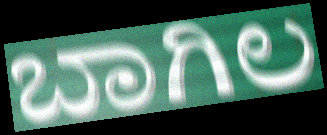
ಬಾಗಿಲ